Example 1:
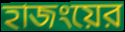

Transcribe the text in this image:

হাজংয়ের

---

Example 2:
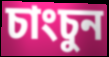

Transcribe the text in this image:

চাংচুন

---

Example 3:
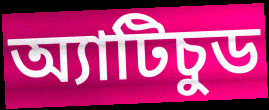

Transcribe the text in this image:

অ্যাটিচুড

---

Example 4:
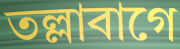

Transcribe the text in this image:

তল্লাবাগে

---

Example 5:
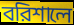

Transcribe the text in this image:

বরিশালে